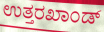
ಉತ್ತರಖಾಂಡ್